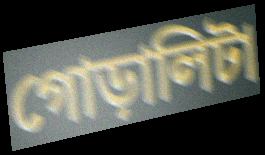
গোড়ালিটা